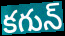
కగున్